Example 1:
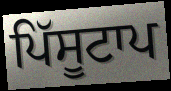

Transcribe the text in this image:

ਪਿੱਸੂਟਾਪ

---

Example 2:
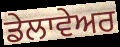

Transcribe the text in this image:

ਡੇਲਾਵੇਅਰ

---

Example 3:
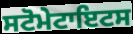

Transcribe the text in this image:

ਸਟੋਮੇਟਾਇਟਸ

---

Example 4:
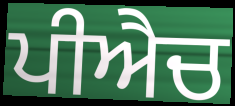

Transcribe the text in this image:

ਪੀਐਚ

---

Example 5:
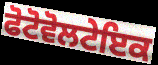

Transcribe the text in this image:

ਫੋਟੋਵੋਲਟੇਇਕ